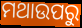
ମଥାଉପରୁ